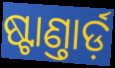
ଷ୍ଟାଣ୍ତାର୍ଡ଼